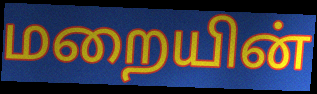
மறையின்